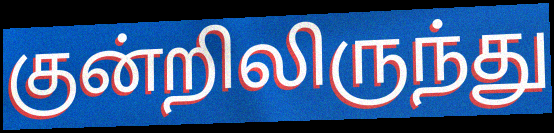
குன்றிலிருந்து